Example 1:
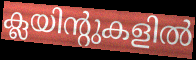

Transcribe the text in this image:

ക്ലയിന്റുകളിൽ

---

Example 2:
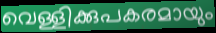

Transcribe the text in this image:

വെള്ളിക്കുപകരമായും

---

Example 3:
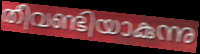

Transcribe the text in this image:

തീവണ്ടിയാകുന്നു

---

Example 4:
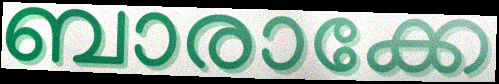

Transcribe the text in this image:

ബാരാക്കേ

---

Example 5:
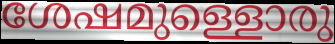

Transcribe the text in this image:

ശേഷമുള്ളൊരു